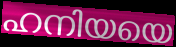
ഹനിയയെ